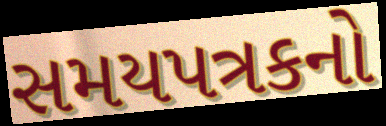
સમયપત્રકનો